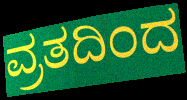
ವ್ರತದಿಂದ